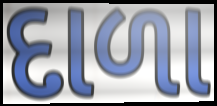
દાળા